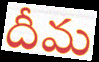
దీమ